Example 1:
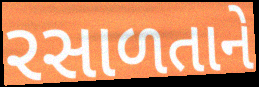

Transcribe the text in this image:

રસાળતાને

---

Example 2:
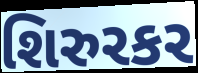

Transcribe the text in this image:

શિરુરકર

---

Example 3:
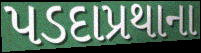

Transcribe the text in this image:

પડદાપ્રથાના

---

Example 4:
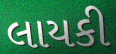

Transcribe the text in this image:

લાયકી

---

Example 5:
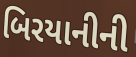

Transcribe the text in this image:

બિરયાનીની